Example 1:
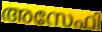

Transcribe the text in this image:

അസേഫി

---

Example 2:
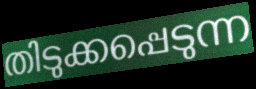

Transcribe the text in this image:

തിടുക്കപ്പെടുന്ന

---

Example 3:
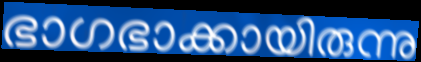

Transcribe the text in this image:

ഭാഗഭാക്കായിരുന്നു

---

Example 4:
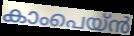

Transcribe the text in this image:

കാംപെയ്ൻ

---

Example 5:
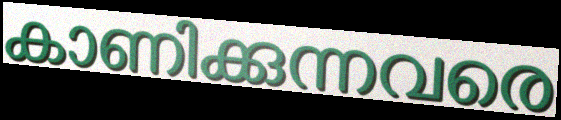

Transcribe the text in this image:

കാണിക്കുന്നവരെ